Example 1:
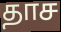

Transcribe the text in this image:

தாச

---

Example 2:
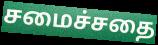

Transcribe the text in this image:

சமைச்சதை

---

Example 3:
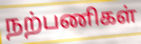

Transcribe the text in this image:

நற்பணிகள்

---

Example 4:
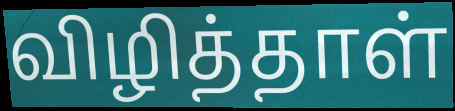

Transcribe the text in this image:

விழித்தாள்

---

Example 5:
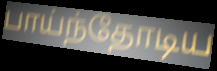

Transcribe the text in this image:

பாய்ந்தோடிய